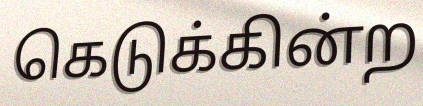
கெடுக்கின்ற